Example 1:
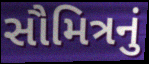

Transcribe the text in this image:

સૌમિત્રનું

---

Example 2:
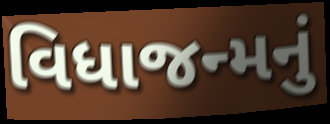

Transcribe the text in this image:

વિધાજન્મનું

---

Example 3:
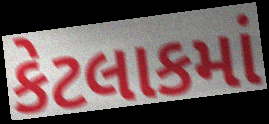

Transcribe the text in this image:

કેટલાકમાં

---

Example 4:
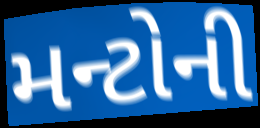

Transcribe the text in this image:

મન્ટોની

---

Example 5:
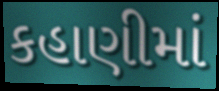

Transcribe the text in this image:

કહાણીમાં